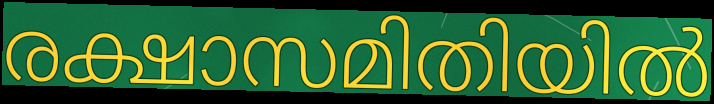
രക്ഷാസമിതിയിൽ